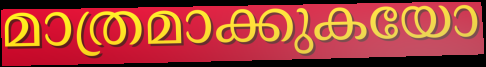
മാത്രമാക്കുകയോ